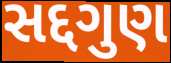
સદ્દગુણ